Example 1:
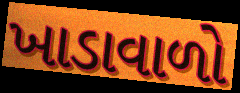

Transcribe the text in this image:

ખાડાવાળો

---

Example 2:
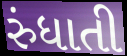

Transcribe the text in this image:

રુંધાતી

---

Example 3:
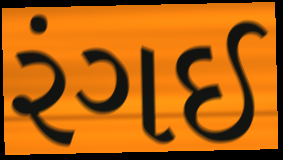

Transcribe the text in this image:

રંગઈ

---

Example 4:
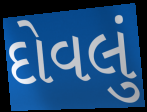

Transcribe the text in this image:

દોવલું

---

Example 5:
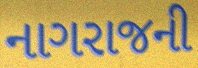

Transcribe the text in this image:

નાગરાજની